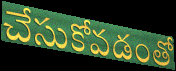
చేసుకోవడంతో